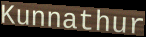
Kunnathur